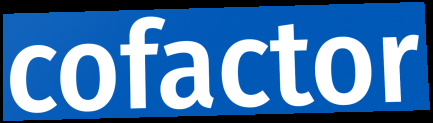
cofactor